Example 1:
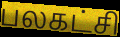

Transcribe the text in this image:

பலகட்சி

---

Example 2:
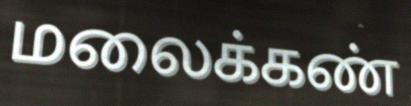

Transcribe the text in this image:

மலைக்கண்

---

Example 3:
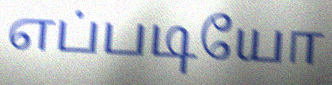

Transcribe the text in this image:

எப்படியோ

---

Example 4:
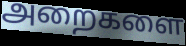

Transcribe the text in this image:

அறைகளை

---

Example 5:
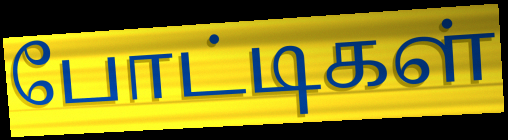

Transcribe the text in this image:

போட்டிகள்